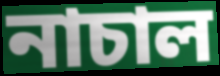
নাচাল